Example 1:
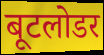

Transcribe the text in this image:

बूटलोडर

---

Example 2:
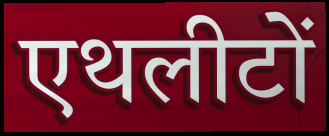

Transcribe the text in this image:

एथलीटों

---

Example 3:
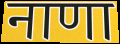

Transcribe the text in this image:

नाणा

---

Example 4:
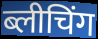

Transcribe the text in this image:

ब्लीचिंग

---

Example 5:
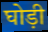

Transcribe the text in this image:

घोड़ी